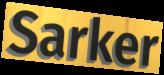
Sarker